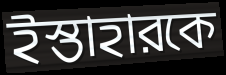
ইস্তাহারকে